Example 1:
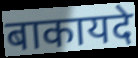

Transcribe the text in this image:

बाकायदे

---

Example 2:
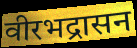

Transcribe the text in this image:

वीरभद्रासन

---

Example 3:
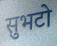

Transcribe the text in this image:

सुभटो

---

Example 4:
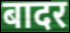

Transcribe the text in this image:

बादर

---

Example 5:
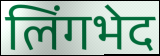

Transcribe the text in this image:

लिंगभेद